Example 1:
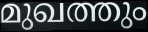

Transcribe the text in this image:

മുഖത്തും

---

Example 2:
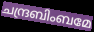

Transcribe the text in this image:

ചന്ദ്രബിംബമേ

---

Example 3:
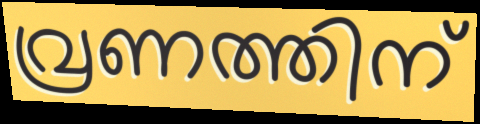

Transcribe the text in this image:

വ്രണത്തിന്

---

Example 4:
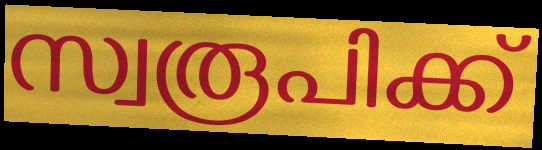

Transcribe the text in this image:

സ്വരൂപിക്ക്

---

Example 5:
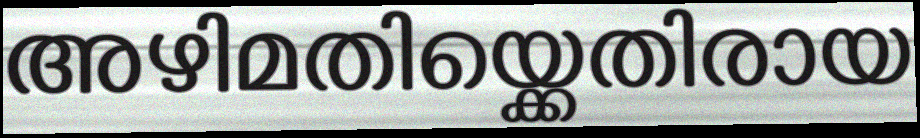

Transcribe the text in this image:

അഴിമതിയ്ക്കെതിരായ